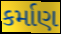
કર્માણ